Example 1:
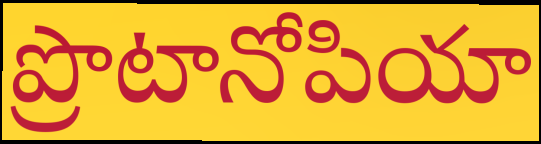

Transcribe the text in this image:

ప్రొటానోపియా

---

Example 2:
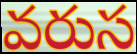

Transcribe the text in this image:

వరుస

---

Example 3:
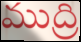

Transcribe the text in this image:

ముద్రి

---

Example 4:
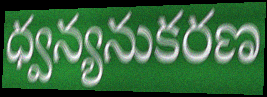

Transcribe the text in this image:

ధ్వన్యనుకరణ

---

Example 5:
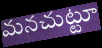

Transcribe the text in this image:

మనచుట్టూ